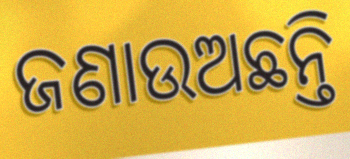
ଜଣାଉଅଛନ୍ତି